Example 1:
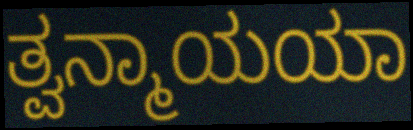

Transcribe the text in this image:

ತ್ವನ್ಮಾಯಯಾ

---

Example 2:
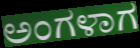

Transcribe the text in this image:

ಅಂಗಳಾಗ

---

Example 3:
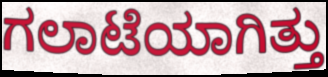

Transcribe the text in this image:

ಗಲಾಟೆಯಾಗಿತ್ತು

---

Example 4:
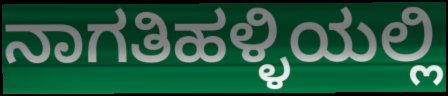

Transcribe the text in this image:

ನಾಗತಿಹಳ್ಳಿಯಲ್ಲಿ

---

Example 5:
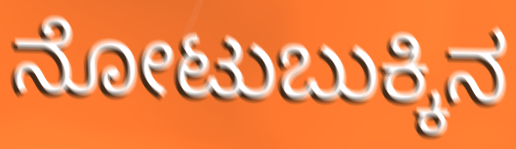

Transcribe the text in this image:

ನೋಟುಬುಕ್ಕಿನ